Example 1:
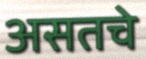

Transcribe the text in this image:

असतचे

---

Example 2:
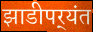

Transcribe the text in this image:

झाडीपर्यंत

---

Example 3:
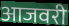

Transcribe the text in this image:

आजवरी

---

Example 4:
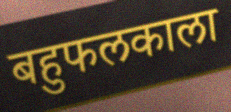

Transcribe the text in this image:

बहुफलकाला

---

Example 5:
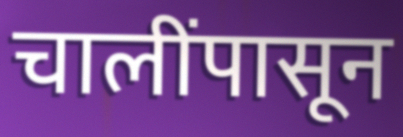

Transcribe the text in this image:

चालींपासून